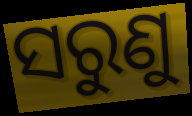
ସରୁଣୁ